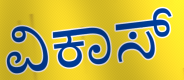
ವಿಕಾಸ್